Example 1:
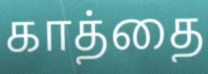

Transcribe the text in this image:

காத்தை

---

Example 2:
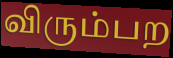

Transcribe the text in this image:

விரும்பற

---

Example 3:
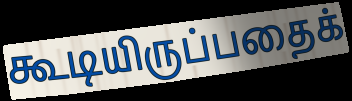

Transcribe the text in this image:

கூடியிருப்பதைக்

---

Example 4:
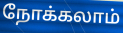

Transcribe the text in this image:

நோக்கலாம்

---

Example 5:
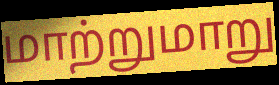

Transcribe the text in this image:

மாற்றுமாறு